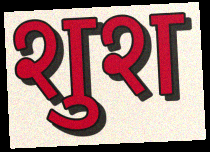
शुश